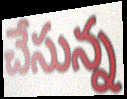
చేసున్న